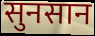
सुनसान